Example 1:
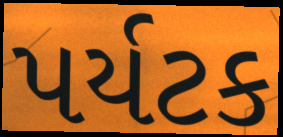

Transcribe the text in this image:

પર્યટક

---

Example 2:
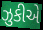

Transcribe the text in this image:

ઝુકીએ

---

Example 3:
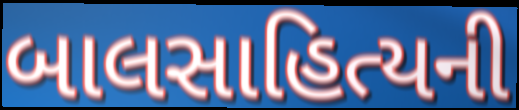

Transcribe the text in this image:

બાલસાહિત્યની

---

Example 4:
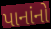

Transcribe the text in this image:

પાનાંનો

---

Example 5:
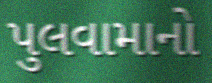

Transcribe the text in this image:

પુલવામાનો